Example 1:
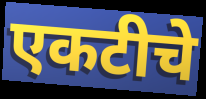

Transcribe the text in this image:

एकटीचे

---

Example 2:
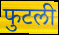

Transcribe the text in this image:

फुटली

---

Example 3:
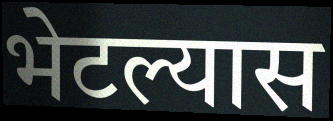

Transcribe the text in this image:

भेटल्यास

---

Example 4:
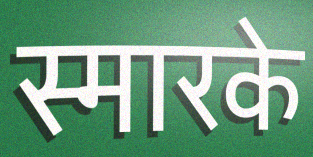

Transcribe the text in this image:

स्मारके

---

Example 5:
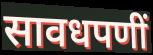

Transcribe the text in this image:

सावधपणीं